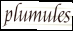
plumules